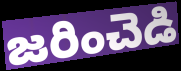
జరించెడి